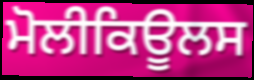
ਮੋਲੀਕਿਊਲਸ